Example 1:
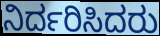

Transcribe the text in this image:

ನಿರ್ದರಿಸಿದರು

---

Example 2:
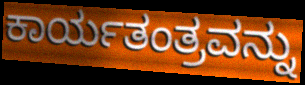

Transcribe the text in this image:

ಕಾರ್ಯತಂತ್ರವನ್ನು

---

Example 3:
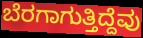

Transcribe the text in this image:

ಬೆರಗಾಗುತ್ತಿದ್ದೆವು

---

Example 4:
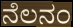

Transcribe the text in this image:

ನೆಲನಂ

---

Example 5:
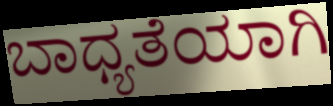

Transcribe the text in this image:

ಬಾಧ್ಯತೆಯಾಗಿ